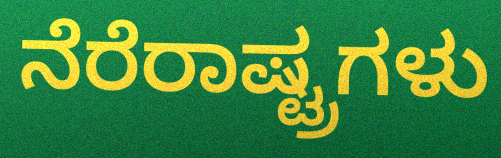
ನೆರೆರಾಷ್ಟ್ರಗಳು